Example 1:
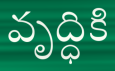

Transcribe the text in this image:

వృద్ధికి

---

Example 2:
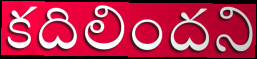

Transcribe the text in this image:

కదిలిందని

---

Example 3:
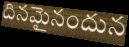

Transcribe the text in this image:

దినమైనందున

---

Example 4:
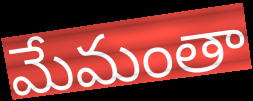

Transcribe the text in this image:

మేమంతా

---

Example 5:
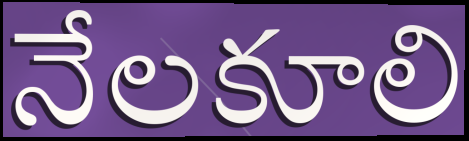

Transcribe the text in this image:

నేలకూలి